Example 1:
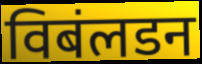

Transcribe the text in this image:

विबंलडन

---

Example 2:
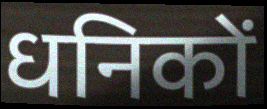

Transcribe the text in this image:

धनिकों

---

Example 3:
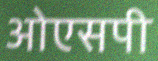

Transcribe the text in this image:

ओएसपी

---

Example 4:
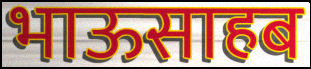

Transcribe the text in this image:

भाऊसाहब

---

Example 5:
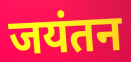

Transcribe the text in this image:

जयंतन